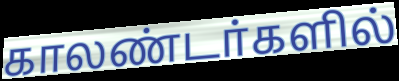
காலண்டர்களில்